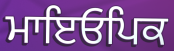
ਮਾਇਓਪਿਕ